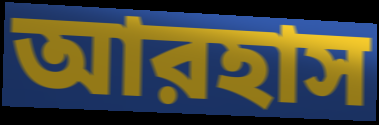
আরহাস